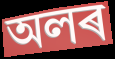
অলৰ